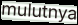
mulutnya